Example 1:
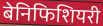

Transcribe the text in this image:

बेनिफिशियरी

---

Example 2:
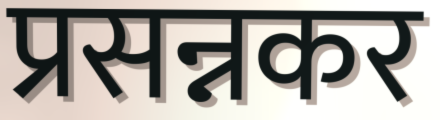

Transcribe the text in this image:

प्रसन्नकर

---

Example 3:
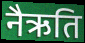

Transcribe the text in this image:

नैऋति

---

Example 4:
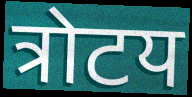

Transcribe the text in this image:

त्रोटय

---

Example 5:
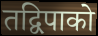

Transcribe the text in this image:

तद्विपाको